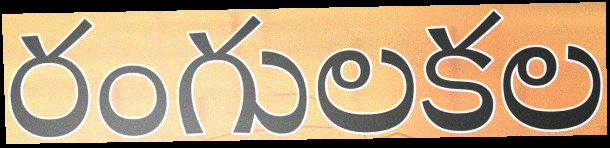
రంగులకల